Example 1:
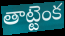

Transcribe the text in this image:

తాట్టెంక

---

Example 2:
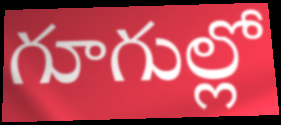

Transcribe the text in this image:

గూగుల్లో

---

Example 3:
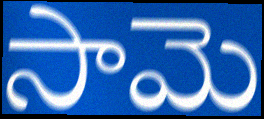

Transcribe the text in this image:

సామె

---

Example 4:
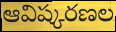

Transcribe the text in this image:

ఆవిష్కరణల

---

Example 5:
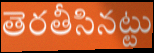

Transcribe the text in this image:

తెరతీసినట్టు